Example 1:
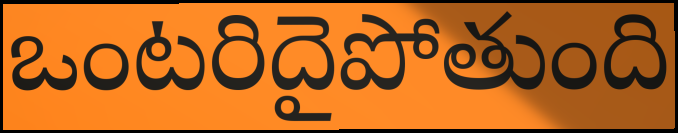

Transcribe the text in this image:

ఒంటరిదైపోతుంది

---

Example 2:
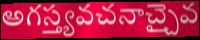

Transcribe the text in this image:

అగస్త్యవచనాచ్చైవ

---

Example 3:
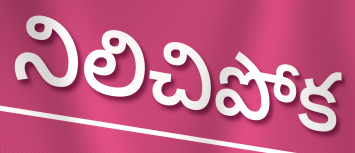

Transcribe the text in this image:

నిలిచిపోక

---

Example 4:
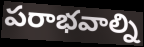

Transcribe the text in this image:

పరాభవాల్ని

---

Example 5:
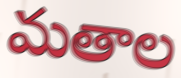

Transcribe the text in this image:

మతాల